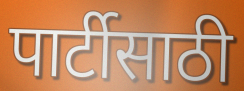
पार्टीसाठी